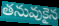
తనువుకైన